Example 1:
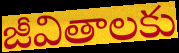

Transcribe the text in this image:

జీవితాలకు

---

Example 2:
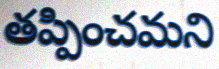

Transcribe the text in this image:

తప్పించమని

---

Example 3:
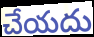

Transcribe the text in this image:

చేయదు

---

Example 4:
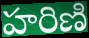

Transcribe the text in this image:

హరిణి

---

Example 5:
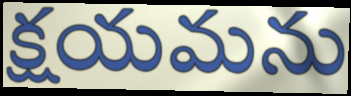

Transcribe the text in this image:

క్షయమను